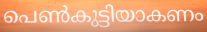
പെൺകുട്ടിയാകണം